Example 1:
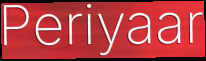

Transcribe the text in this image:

Periyaar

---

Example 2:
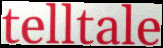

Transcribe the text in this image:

telltale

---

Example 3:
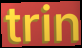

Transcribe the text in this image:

trin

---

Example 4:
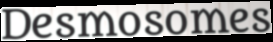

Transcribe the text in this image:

Desmosomes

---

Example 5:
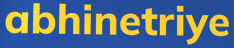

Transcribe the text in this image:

abhinetriye